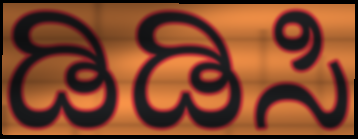
ಡಿಡಿಸಿ